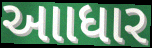
આાધાર